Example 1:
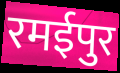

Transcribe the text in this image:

रमईपुर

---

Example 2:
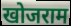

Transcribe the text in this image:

खोजराम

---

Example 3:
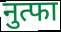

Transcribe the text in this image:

नुत्फा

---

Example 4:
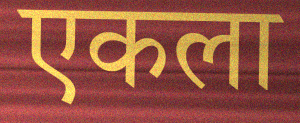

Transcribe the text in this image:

एकला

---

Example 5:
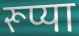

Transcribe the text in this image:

रूप्या